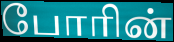
போரின்